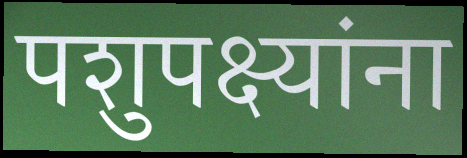
पशुपक्ष्यांना